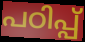
പഠിപ്പ്